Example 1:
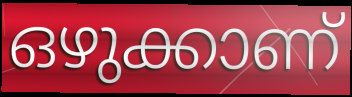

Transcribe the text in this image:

ഒഴുക്കാണ്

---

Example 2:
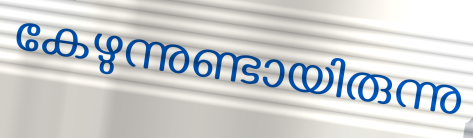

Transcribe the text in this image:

കേഴുന്നുണ്ടായിരുന്നു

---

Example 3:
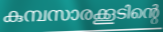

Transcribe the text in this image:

കുമ്പസാരക്കൂടിന്റെ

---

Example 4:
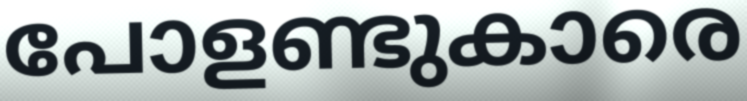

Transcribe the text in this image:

പോളണ്ടുകാരെ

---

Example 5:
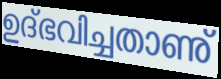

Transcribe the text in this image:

ഉദ്ഭവിച്ചതാണു്